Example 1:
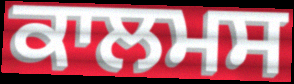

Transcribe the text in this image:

ਕਾਲਮਸ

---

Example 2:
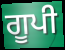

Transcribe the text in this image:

ਗੂਪੀ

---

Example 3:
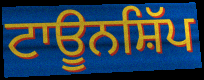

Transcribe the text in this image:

ਟਾਊਨਸ਼ਿੱਪ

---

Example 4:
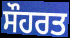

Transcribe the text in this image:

ਸੌਹਰਤ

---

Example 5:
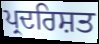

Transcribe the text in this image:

ਪ੍ਰਦਰਿਸ਼ਤ